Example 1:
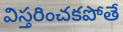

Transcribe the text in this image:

విస్తరించకపోతే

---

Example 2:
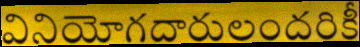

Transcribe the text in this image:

వినియోగదారులందరికీ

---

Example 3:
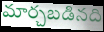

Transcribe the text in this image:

మార్చబడినది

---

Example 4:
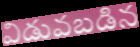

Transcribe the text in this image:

విడువబడిన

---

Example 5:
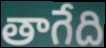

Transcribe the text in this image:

తాగేది